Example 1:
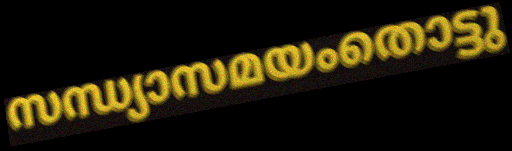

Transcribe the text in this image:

സന്ധ്യാസമയംതൊട്ടു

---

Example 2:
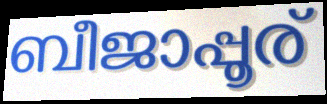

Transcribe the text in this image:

ബീജാപ്പൂര്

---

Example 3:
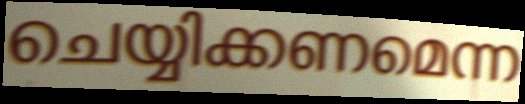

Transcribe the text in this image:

ചെയ്യിക്കണമെന്ന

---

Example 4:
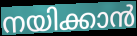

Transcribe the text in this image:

നയിക്കാൻ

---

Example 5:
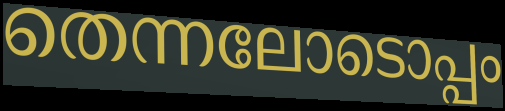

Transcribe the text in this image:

തെന്നലോടൊപ്പം